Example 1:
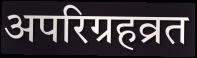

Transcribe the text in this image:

अपरिग्रहव्रत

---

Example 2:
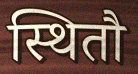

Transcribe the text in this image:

स्थितौ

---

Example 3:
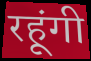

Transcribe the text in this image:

रहूंगी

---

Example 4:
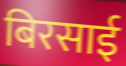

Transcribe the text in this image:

बिरसाई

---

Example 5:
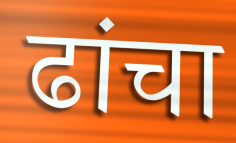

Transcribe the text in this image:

ढांचा